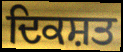
ਦਿਕਸ਼ਤ